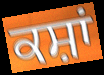
ਕਸ਼ਾਂ